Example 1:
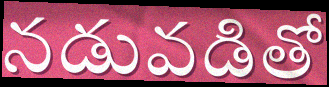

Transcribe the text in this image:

నడువడితో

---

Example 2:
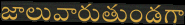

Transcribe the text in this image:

జాలువారుతుండగా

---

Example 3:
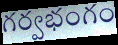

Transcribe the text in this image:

గర్వభంగం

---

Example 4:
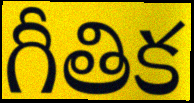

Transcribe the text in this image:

గీతిక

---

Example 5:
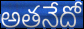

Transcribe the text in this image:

అతనేదో